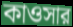
কাওসার